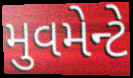
મુવમેન્ટે